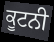
ਕੂਟਨੀ